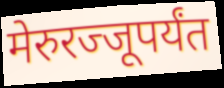
मेरुरज्जूपर्यंत